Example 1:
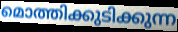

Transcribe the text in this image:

മൊത്തിക്കുടിക്കുന്ന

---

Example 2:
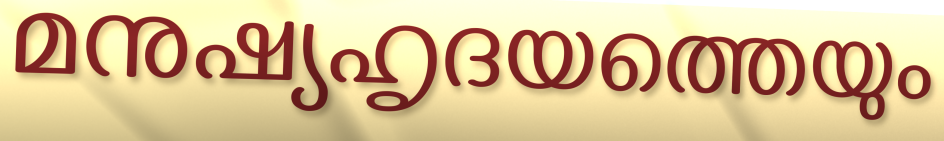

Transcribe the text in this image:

മനുഷ്യഹൃദയത്തെയും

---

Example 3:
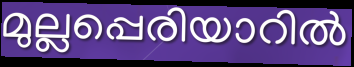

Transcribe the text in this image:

മുല്ലപ്പെരിയാറിൽ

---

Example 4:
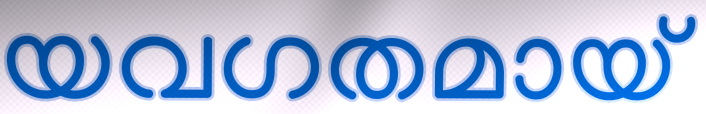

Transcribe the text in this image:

യവഗതമായ്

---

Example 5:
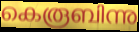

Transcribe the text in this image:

കെരൂബിന്നു